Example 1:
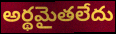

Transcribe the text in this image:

అర్థమైతలేదు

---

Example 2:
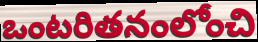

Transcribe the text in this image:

ఒంటరితనంలోంచి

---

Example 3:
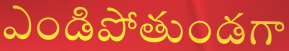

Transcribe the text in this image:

ఎండిపోతుండగా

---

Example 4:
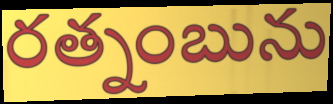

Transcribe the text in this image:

రత్నంబును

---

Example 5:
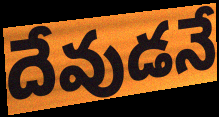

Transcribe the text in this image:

దేవుడనే